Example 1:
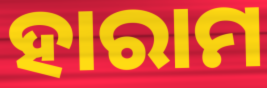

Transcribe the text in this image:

ହାରାମ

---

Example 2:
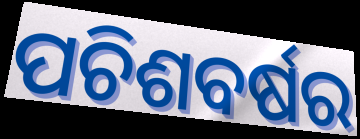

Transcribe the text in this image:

ପଚିଶବର୍ଷର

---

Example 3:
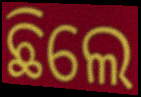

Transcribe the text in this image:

ଛିଲେ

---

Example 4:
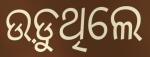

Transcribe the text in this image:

ଉଡ଼ୁଥିଲେ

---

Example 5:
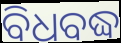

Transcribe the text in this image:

ବିଧବଦ୍ଧ